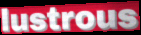
lustrous